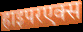
हाइपरएक्स